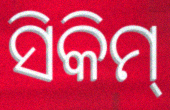
ସିକିମ୍